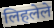
लिहलेले